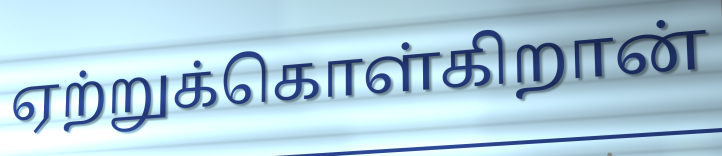
ஏற்றுக்கொள்கிறான்